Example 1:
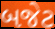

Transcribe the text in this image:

બજેટ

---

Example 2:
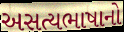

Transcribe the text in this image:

અસત્યભાષાનો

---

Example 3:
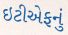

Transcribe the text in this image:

ઇટીએફનું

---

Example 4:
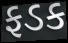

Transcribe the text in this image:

ફડક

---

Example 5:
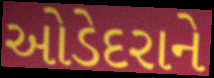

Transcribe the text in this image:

ઓડેદરાને